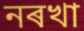
নৰখা